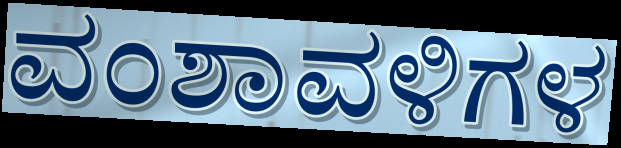
ವಂಶಾವಳಿಗಳ